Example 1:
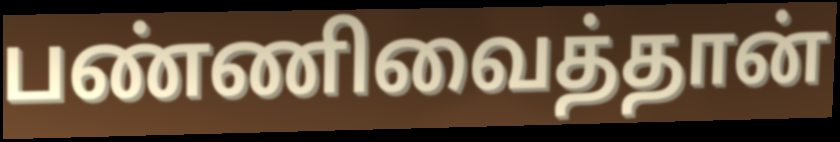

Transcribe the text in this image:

பண்ணிவைத்தான்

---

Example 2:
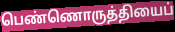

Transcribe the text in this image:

பெண்ணொருத்தியைப்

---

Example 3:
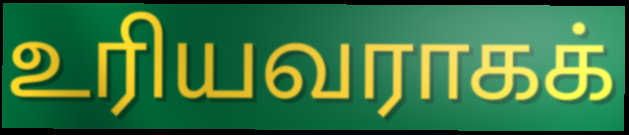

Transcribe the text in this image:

உரியவராகக்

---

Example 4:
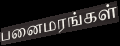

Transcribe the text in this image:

பனைமரங்கள்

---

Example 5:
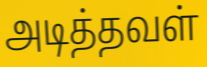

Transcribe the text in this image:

அடித்தவள்